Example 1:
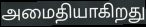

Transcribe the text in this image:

அமைதியாகிறது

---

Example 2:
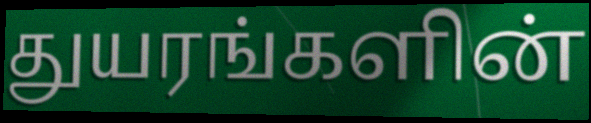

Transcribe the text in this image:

துயரங்களின்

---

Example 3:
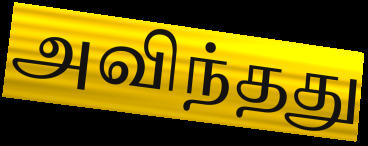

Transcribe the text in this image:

அவிந்தது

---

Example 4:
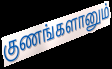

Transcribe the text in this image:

குணங்களானும்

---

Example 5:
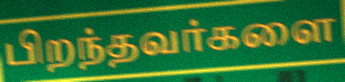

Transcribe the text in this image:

பிறந்தவர்களை